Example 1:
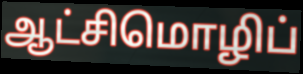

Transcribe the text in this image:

ஆட்சிமொழிப்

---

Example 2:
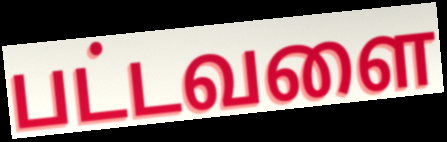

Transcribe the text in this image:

பட்டவளை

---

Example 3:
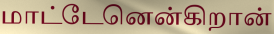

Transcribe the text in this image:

மாட்டேனென்கிறான்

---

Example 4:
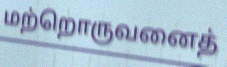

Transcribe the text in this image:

மற்றொருவனைத்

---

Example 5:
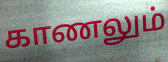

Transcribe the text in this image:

காணலும்